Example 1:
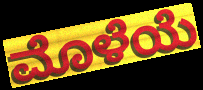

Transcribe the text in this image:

ಮೊಳೆಯೆ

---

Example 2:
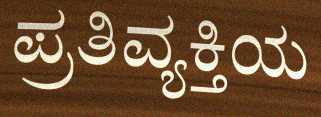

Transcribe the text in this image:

ಪ್ರತಿವ್ಯಕ್ತಿಯ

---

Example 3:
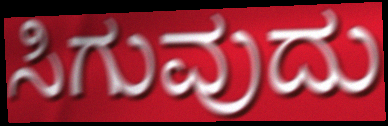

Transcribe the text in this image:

ಸಿಗುವುದು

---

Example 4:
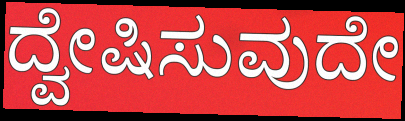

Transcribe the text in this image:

ದ್ವೇಷಿಸುವುದೇ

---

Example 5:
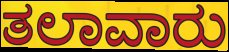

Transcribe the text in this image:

ತಲಾವಾರು